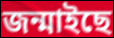
জন্মাইছে